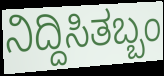
ನಿದ್ದಿಸಿತಬ್ಬಂ